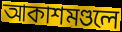
আকাশমণ্ডলে